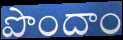
పొందాం